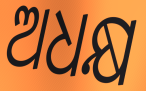
ଅଧକ୍ଷ